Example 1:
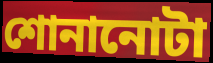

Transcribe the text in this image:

শোনানোটা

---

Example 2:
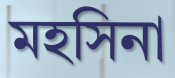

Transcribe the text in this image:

মহসিনা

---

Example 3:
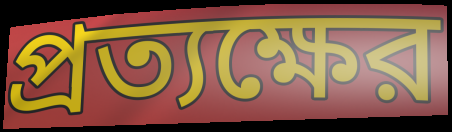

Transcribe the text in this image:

প্রত্যক্ষের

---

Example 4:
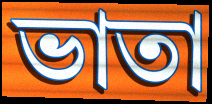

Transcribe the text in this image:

ভাতা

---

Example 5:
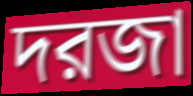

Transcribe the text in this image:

দরজা